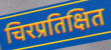
चिरप्रतिक्षित